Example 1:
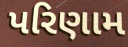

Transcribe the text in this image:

પરિણામ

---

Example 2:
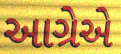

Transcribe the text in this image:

આગ્રેએ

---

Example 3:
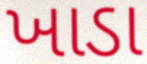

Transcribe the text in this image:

ખાડા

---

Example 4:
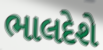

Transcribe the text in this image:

ભાલદેશે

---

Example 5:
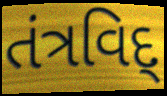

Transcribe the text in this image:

તંત્રવિદ્